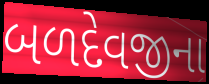
બળદેવજીના